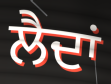
ਲੈਦਾਂ